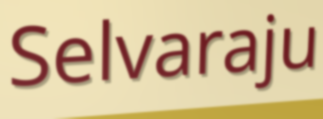
Selvaraju